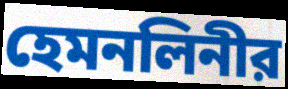
হেমনলিনীর